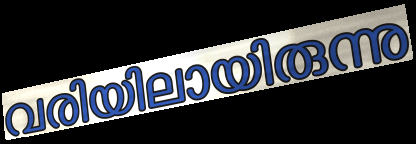
വരിയിലായിരുന്നു